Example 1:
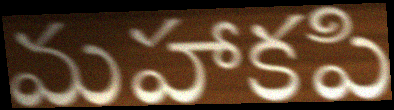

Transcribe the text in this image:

మహాకపి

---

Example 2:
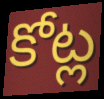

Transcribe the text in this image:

కోట్ల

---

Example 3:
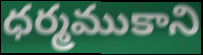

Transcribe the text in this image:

ధర్మముకాని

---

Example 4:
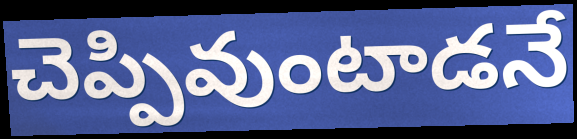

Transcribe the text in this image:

చెప్పివుంటాడనే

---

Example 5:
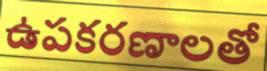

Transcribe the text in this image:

ఉపకరణాలతో